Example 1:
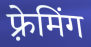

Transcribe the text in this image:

फ़्रेमिंग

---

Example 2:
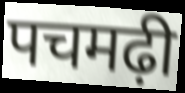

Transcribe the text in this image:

पचमढ़ी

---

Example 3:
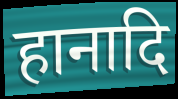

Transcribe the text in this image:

हानादि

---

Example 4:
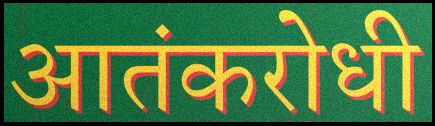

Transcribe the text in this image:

आतंकरोधी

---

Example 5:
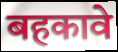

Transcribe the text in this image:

बहकावे